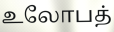
உலோபத்